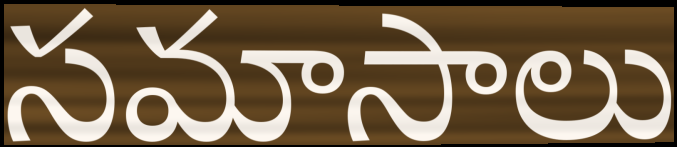
సమాసాలు